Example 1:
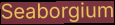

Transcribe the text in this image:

Seaborgium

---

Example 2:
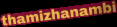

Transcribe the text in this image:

thamizhanambi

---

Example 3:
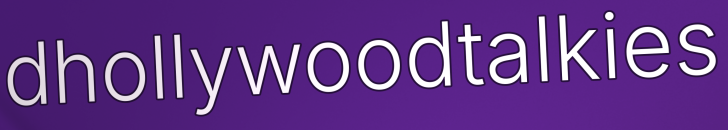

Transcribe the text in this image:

dhollywoodtalkies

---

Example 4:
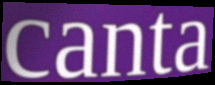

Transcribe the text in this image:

canta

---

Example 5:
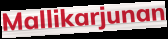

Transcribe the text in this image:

Mallikarjunan